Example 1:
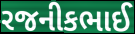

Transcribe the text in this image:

રજનીકભાઈ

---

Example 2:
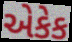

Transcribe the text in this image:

એકેક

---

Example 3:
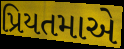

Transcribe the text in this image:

પ્રિયતમાએ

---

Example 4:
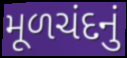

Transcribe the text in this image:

મૂળચંદનું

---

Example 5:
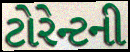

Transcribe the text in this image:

ટોરેન્ટની